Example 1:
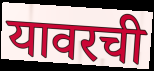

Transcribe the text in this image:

यावरची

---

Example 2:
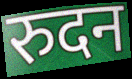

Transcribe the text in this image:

रुदन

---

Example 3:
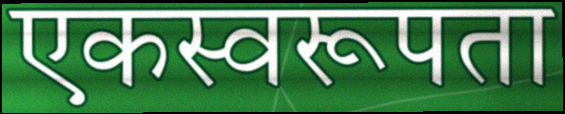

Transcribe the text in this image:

एकस्वरूपता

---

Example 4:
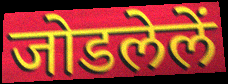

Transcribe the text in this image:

जोडलेलें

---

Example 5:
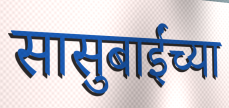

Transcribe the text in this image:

सासुबाईंच्या